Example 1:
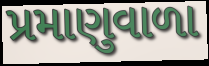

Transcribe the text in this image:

પ્રમાણુવાળા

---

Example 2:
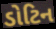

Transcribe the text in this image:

ડોટિન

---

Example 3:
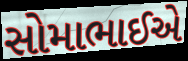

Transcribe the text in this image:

સોમાભાઈએ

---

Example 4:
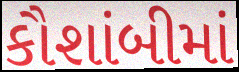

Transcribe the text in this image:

કૌશાંબીમાં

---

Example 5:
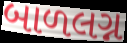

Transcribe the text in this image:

બાળલગ્ન